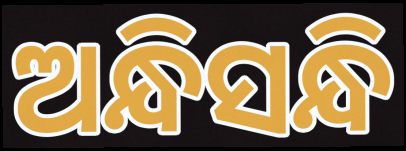
ଅନ୍ଧିସନ୍ଧି